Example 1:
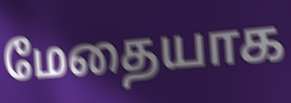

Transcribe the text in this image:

மேதையாக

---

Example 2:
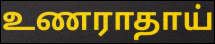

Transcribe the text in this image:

உணராதாய்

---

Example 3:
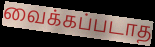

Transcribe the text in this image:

வைக்கப்படாத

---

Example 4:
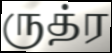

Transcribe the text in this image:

ருத்ர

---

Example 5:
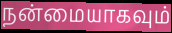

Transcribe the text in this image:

நன்மையாகவும்